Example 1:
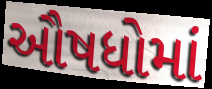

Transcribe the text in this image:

ઔષધોમાં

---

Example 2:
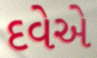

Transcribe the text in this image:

દવેએ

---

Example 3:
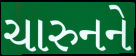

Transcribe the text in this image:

ચારુનને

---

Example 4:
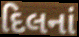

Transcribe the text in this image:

દિલનાં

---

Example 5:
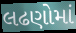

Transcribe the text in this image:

લઢણોમાં